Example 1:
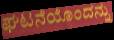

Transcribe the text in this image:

ಘಟನೆಯೊಂದನ್ನು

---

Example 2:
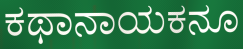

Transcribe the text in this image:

ಕಥಾನಾಯಕನೂ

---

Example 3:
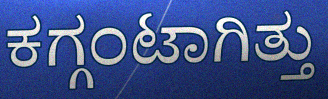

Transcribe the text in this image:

ಕಗ್ಗಂಟಾಗಿತ್ತು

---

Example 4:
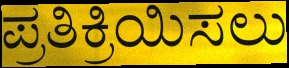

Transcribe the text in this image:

ಪ್ರತಿಕ್ರಿಯಿಸಲು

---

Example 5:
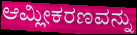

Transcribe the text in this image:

ಆಮ್ಲೀಕರಣವನ್ನು